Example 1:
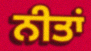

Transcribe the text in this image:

ਨੀਤਾਂ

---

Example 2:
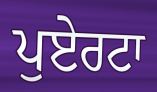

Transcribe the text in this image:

ਪੁਏਰਟਾ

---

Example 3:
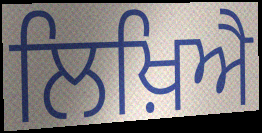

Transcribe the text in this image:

ਲਿਖ਼ਿਐ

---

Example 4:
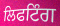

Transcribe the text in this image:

ਲਿਫਟਿੰਗ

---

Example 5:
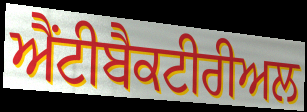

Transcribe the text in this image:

ਐਂਟੀਬੈਕਟੀਰੀਅਲ